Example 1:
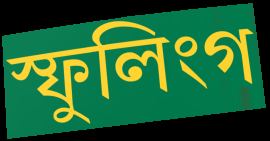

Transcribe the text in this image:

স্ফুলিংগ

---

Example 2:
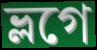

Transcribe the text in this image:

ভ্লগে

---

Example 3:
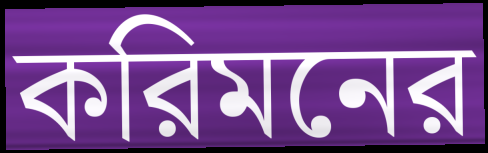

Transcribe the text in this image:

করিমনের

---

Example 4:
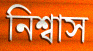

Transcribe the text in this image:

নিশ্বাস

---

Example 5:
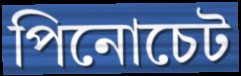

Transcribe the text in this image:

পিনোচেট